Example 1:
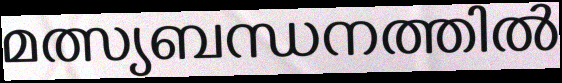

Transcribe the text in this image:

മത്സ്യബന്ധനത്തിൽ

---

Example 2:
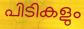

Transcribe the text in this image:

പിടികളും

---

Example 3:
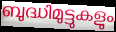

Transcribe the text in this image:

ബുദ്ധിമുട്ടുകളും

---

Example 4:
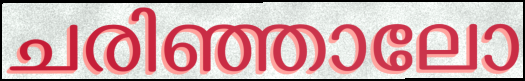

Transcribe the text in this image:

ചരിഞ്ഞാലോ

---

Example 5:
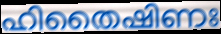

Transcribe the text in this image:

ഹിതൈഷിണഃ